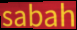
sabah